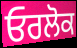
ਓਰਲੋਕ